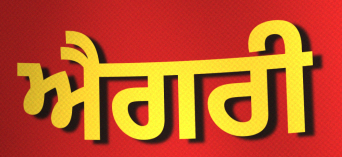
ਐਗਰੀ